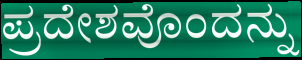
ಪ್ರದೇಶವೊಂದನ್ನು